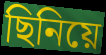
ছিনিয়ে